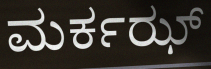
ಮರ್ಕಝ್